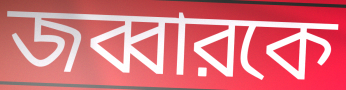
জব্বারকে